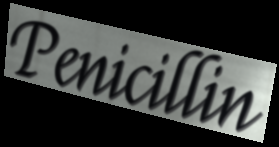
Penicillin